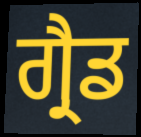
ਗ੍ਰੈਡ